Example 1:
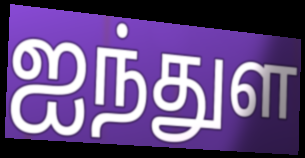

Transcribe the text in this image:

ஐந்துள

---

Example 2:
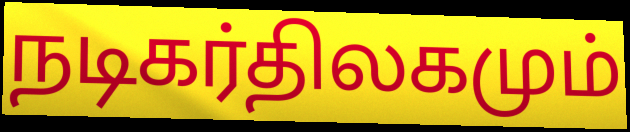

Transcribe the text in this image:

நடிகர்திலகமும்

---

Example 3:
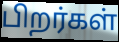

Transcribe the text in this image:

பிறர்கள்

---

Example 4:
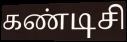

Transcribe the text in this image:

கண்டிசி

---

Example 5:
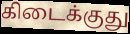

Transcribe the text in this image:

கிடைக்குது